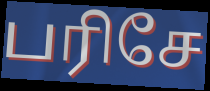
பரிசே